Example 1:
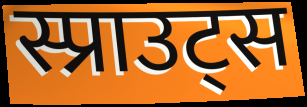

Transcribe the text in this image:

स्प्राउट्स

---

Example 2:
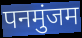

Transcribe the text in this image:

पनमुंजम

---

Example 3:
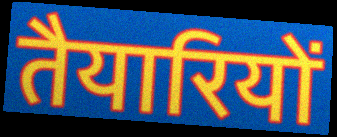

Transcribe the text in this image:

तैयारियों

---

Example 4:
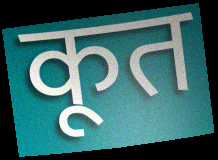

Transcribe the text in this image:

कूत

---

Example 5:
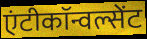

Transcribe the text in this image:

एंटीकॉन्वल्सेंट